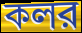
কলর